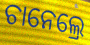
ଚାନେଲ୍ରେ